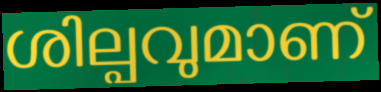
ശില്പവുമാണ്